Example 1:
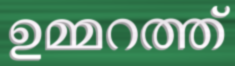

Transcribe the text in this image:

ഉമ്മറത്ത്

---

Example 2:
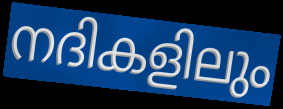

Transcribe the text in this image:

നദികളിലും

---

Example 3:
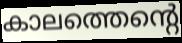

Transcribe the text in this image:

കാലത്തെന്റെ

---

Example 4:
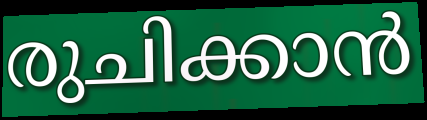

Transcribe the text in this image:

രുചിക്കാൻ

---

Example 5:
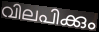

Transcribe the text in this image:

വിലപിക്കും